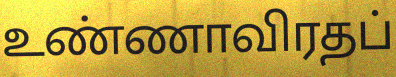
உண்ணாவிரதப்